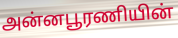
அன்னபூரணியின்